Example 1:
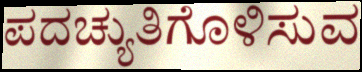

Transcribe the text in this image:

ಪದಚ್ಯುತಿಗೊಳಿಸುವ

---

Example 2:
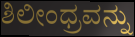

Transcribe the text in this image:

ಶಿಲೀಂಧ್ರವನ್ನು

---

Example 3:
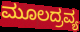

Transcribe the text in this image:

ಮೂಲದ್ರವ್ಯ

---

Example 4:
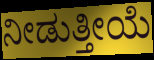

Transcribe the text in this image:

ನೀಡುತ್ತೀಯೆ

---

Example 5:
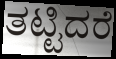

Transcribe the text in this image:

ತಟ್ಟಿದರೆ